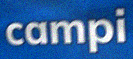
campi